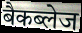
बैकब्लेज